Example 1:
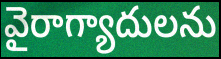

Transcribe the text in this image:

వైరాగ్యాదులను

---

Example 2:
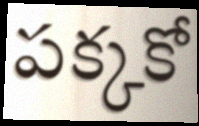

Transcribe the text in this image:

పక్కకో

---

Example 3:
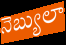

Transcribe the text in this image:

నెబ్యులా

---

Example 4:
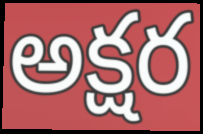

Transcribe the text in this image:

అక్షర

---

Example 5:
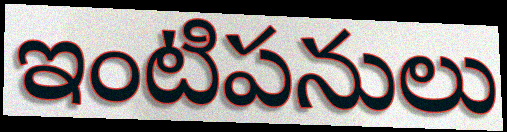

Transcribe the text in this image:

ఇంటిపనులు